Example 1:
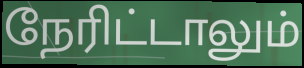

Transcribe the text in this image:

நேரிட்டாலும்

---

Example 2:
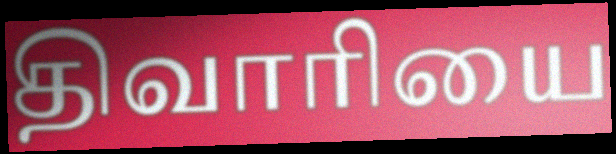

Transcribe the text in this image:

திவாரியை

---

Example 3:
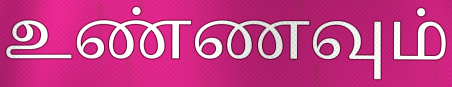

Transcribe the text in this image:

உண்ணவும்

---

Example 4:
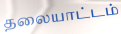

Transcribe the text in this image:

தலையாட்டம்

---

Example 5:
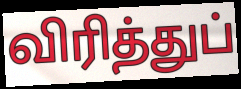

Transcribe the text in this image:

விரித்துப்